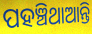
ପହଞ୍ଚିଥାଆନ୍ତି